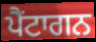
ਪੈਂਟਾਗਨ